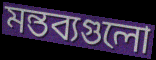
মন্তব্যগুলো